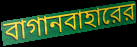
বাগানবাহারের